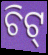
ଚିଟ୍